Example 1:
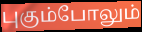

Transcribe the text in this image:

புகும்போலும்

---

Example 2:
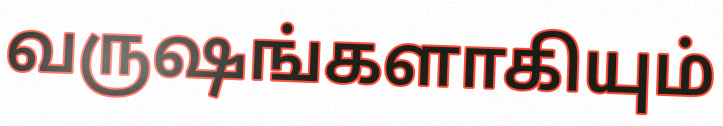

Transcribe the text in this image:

வருஷங்களாகியும்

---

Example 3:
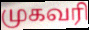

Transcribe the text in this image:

முகவரி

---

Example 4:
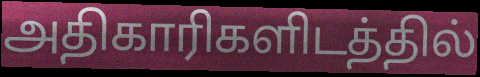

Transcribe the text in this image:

அதிகாரிகளிடத்தில்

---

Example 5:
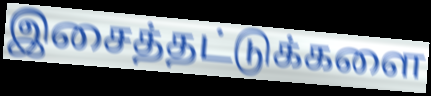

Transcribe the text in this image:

இசைத்தட்டுக்களை